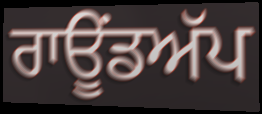
ਰਾਊਂਡਅੱਪ